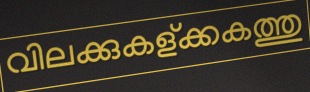
വിലക്കുകള്ക്കകത്തു